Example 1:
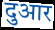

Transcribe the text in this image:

दुआर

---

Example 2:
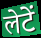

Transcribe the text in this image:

लेटें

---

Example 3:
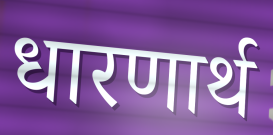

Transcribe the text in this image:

धारणार्थ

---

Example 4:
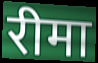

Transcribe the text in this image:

रीमा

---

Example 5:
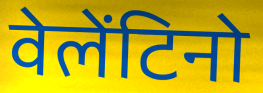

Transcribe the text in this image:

वेलेंटिनो